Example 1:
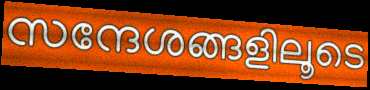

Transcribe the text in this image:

സന്ദേശങ്ങളിലൂടെ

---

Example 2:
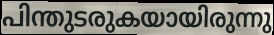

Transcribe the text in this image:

പിന്തുടരുകയായിരുന്നു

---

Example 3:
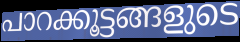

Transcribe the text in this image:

പാറക്കൂട്ടങ്ങളുടെ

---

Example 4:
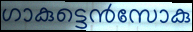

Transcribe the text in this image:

ഗാകുട്ടെൻസോകു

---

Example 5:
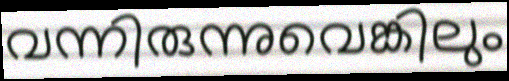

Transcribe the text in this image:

വന്നിരുന്നുവെങ്കിലും